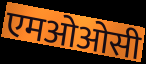
एमओओसी